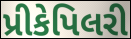
પ્રીકેપિલરી